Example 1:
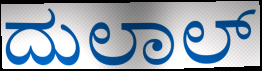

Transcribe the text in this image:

ದುಲಾಲ್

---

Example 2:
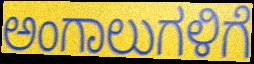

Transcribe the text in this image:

ಅಂಗಾಲುಗಳಿಗೆ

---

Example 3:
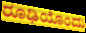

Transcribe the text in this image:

ರೂಢಿಯೊಂದು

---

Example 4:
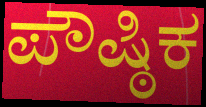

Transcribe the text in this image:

ಪೌಷ್ಠಿಕ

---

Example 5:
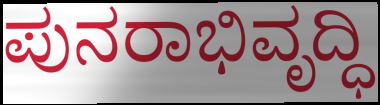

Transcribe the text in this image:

ಪುನರಾಭಿವೃದ್ಧಿ